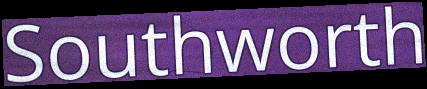
Southworth